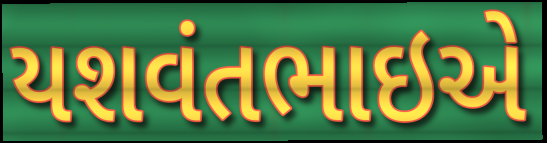
યશવંતભાઇએ